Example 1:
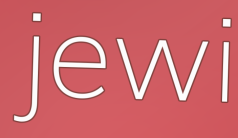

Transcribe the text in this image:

jewi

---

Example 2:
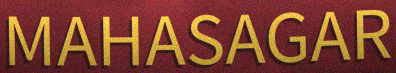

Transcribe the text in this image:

MAHASAGAR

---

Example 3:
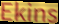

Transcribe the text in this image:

Ekins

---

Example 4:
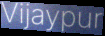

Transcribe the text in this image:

Vijaypur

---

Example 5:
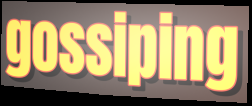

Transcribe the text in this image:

gossiping